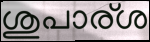
ശുപാര്ശ